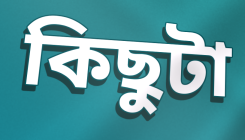
কিছুটা